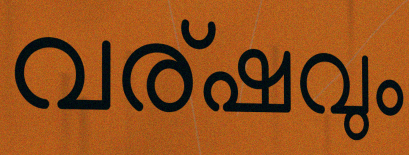
വര്ഷവും